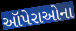
ઑપેરાઓના